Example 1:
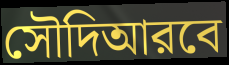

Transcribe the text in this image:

সৌদিআরবে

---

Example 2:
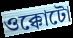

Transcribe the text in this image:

ওক্কোটো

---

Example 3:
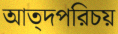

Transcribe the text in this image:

আত্দপরিচয়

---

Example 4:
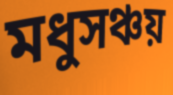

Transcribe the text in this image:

মধুসঞ্চয়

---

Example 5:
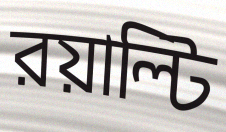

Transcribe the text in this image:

রয়াল্টি